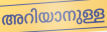
അറിയാനുള്ള